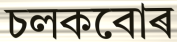
চলকবোৰ